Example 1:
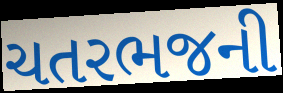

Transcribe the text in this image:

ચતરભજની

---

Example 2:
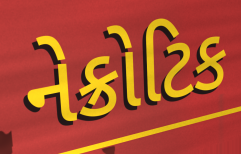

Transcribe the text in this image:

નેક્રોટિક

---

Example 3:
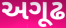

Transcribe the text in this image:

અગૂઢ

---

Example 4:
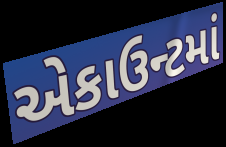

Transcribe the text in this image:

એકાઉન્ટમાં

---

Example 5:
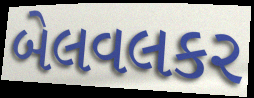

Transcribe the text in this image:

બેલવલકર